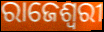
ରାଜେଶ୍ଵରୀ